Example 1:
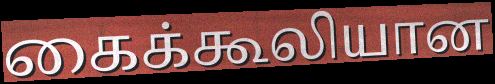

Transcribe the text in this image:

கைக்கூலியான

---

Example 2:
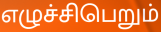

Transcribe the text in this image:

எழுச்சிபெறும்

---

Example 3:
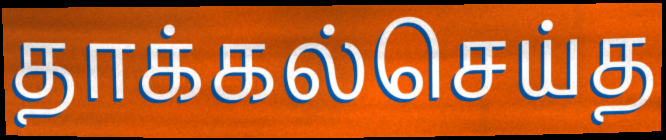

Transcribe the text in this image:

தாக்கல்செய்த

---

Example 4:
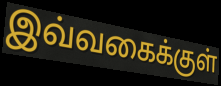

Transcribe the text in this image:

இவ்வகைக்குள்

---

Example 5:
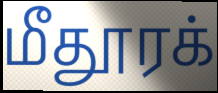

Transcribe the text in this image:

மீதூரக்